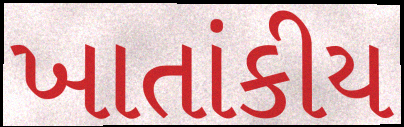
ખાતાંકીય